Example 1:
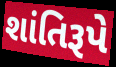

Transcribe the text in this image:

શાંતિરૂપે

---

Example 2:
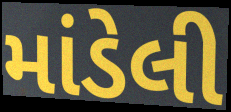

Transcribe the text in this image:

માંડેલી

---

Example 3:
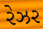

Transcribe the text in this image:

રેઝર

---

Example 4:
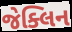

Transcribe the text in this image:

જેક્લિન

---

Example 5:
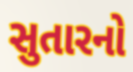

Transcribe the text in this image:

સુતારનો